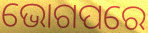
ଭୋଗପରେ